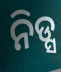
ନିଡ୍ସ